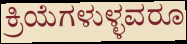
ಕ್ರಿಯೆಗಳುಳ್ಳವರೂ